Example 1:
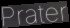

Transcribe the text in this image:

Prater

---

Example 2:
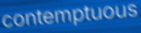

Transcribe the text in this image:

contemptuous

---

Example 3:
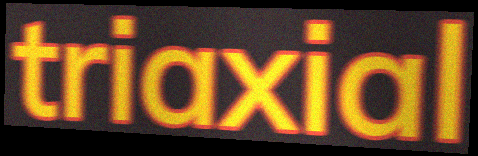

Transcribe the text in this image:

triaxial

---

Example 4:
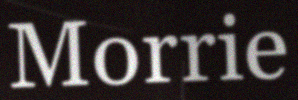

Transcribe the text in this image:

Morrie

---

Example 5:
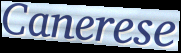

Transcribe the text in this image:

Canerese